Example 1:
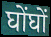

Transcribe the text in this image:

घोंघों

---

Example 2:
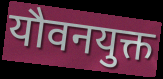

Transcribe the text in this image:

यौवनयुक्त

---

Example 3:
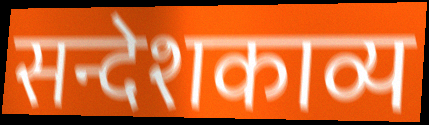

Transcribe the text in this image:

सन्देशकाव्य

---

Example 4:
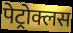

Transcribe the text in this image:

पेट्रोक्लस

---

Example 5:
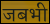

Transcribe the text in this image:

जबभी